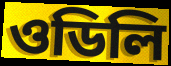
ওডিলি